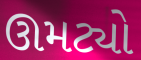
ઊમટ્યો